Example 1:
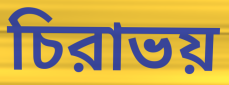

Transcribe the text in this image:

চিরাভয়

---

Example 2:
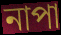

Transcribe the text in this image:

নাপা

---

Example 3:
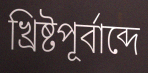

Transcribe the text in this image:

খ্রিষ্টপূর্বাব্দে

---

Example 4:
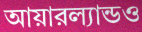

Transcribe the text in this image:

আয়ারল্যান্ডও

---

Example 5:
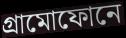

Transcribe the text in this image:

গ্রামোফোনে